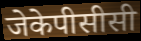
जेकेपीसीसी